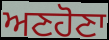
ਅਣਹੋਣਾ